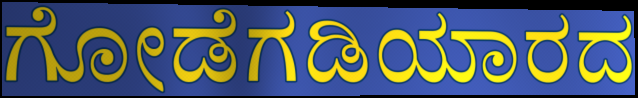
ಗೋಡೆಗಡಿಯಾರದ